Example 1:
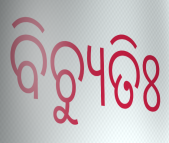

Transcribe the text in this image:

ବିଚ୍ୟୁତିଃ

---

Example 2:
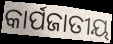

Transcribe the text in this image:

କାର୍ପଜାତୀୟ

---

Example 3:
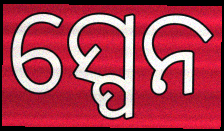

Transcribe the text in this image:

ସ୍ପେନ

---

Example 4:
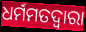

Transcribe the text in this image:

ଧର୍ମମତଦ୍ୱାରା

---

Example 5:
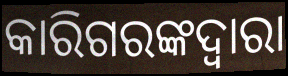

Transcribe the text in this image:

କାରିଗରଙ୍କଦ୍ୱାରା